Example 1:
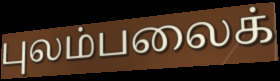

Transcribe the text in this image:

புலம்பலைக்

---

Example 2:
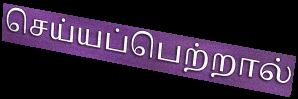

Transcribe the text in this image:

செய்யப்பெற்றால்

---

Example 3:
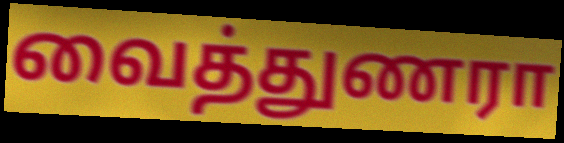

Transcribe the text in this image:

வைத்துணரா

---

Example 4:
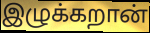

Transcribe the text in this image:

இழுக்கறான்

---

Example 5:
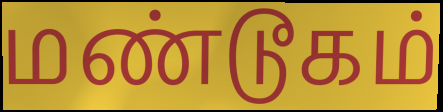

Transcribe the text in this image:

மண்டூகம்